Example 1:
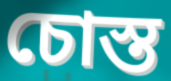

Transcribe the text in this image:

চোস্ত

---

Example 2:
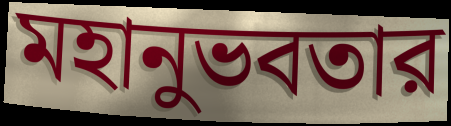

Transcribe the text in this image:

মহানুভবতার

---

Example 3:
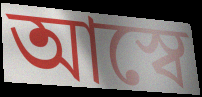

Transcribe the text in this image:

আস্বে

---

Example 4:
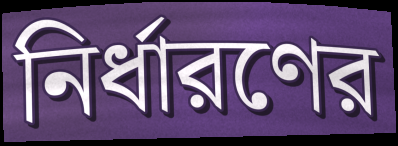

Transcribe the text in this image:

নির্ধারণের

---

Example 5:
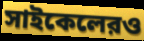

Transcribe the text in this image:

সাইকেলেরও